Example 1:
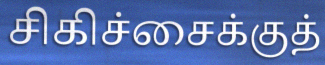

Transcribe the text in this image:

சிகிச்சைக்குத்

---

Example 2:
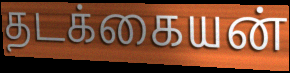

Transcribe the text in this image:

தடக்கையன்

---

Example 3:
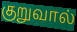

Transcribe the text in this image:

குறுவால்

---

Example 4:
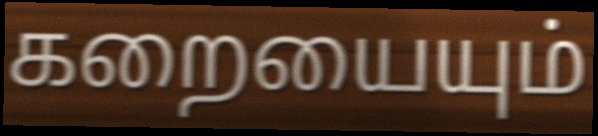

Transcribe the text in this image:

கறையையும்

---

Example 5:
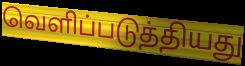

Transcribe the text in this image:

வெளிப்படுத்தியது